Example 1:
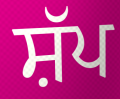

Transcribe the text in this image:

ਸ਼ੱਪ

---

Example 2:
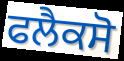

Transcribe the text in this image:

ਫਲੈਕਸੋ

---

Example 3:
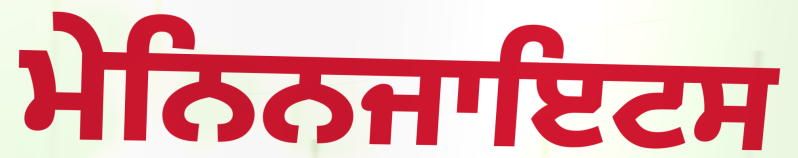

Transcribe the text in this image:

ਮੇਨਿਨਜਾਇਟਸ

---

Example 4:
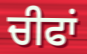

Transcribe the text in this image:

ਚੀਫਾਂ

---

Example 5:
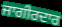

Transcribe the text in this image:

ਜਾਗੀਰਦਾਰ